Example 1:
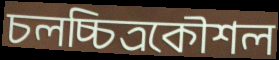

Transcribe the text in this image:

চলচ্চিত্রকৌশল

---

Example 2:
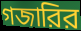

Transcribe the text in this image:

গজারির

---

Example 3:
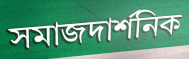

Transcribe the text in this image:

সমাজদার্শনিক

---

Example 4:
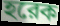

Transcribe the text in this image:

হরেক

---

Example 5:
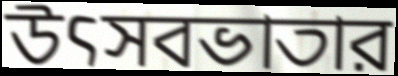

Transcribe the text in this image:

উৎসবভাতার